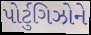
પોર્ટુગિઝોને